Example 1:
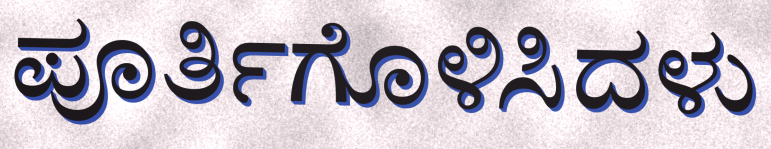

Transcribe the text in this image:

ಪೂರ್ತಿಗೊಳಿಸಿದಳು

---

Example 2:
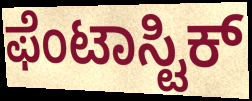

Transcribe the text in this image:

ಫೆಂಟಾಸ್ಟಿಕ್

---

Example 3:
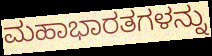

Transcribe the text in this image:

ಮಹಾಭಾರತಗಳನ್ನು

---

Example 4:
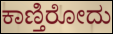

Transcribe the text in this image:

ಕಾಣ್ತಿರೋದು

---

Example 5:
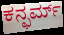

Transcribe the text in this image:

ಕನ್ಫರ್ಮ್